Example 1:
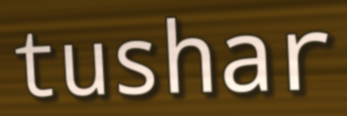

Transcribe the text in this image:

tushar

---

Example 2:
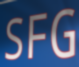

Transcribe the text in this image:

SFG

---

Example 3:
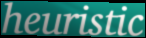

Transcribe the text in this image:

heuristic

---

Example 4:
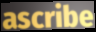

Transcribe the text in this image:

ascribe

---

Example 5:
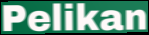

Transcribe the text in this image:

Pelikan